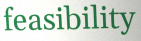
feasibility